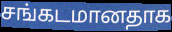
சங்கடமானதாக